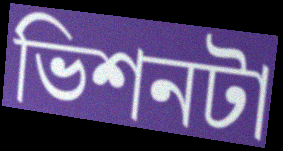
ভিশনটা